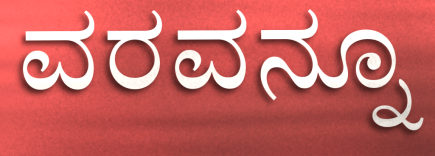
ವರವನ್ನೂ